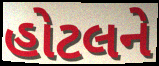
હોટલને